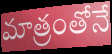
మాత్రంతోనే